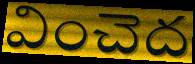
వించెద